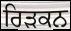
ਰਿੜਕਨ